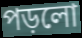
পড়লো